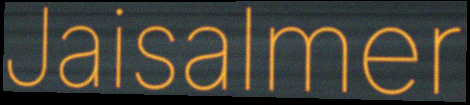
Jaisalmer